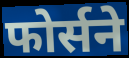
फोर्सने